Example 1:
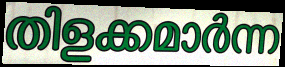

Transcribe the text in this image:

തിളക്കമാർന്ന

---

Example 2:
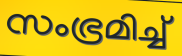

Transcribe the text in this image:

സംഭ്രമിച്ച്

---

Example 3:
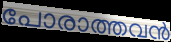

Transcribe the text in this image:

പോരാത്തവൻ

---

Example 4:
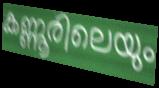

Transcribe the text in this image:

കണ്ണൂരിലെയും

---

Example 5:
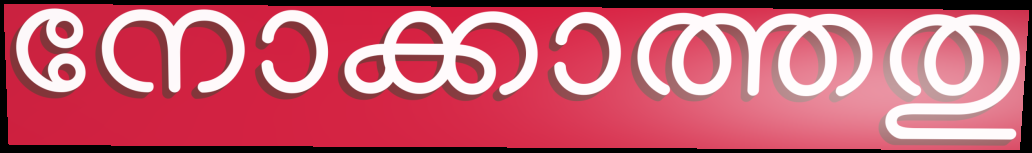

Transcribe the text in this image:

നോക്കാത്തതു